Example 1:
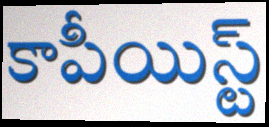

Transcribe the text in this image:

కాపీయిస్ట్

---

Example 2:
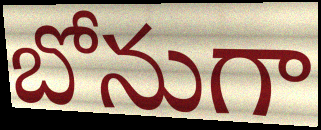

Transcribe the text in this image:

బోనుగా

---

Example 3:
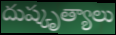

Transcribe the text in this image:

దుష్కృత్యాలు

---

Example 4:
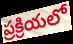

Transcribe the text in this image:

ప్రక్రియలో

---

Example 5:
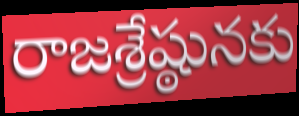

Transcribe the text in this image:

రాజశ్రేష్ఠునకు